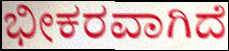
ಭೀಕರವಾಗಿದೆ